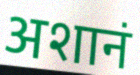
अशानं